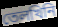
তেলখিনি